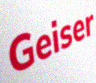
Geiser